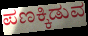
ಪಣಕ್ಕಿಡುವ